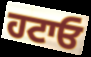
ਹਟਾਓ